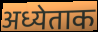
अध्येताक